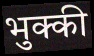
भुक्की